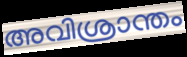
അവിശ്രാന്തം